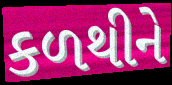
કળથીને